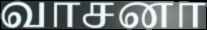
வாசனா